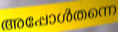
അപ്പോൾതന്നെ